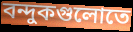
বন্দুকগুলোতে